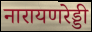
नारायणरेड्डी